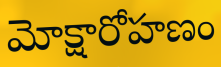
మోక్షారోహణం